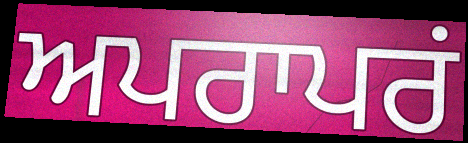
ਅਪਰਾਪਰਂ